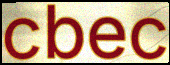
cbec